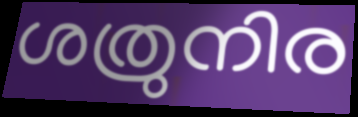
ശത്രുനിര